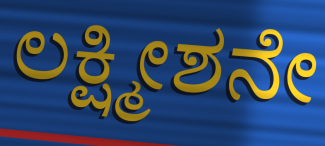
ಲಕ್ಷ್ಮೀಶನೇ